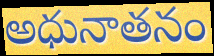
అధునాతనం